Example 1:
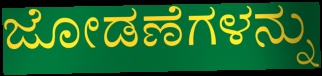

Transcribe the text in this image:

ಜೋಡಣೆಗಳನ್ನು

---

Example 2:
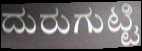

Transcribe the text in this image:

ದುರುಗುಟ್ಟಿ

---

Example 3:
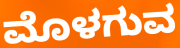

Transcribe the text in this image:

ಮೊಳಗುವ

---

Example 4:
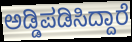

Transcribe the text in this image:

ಅಡ್ಡಿಪಡಿಸಿದ್ದಾರೆ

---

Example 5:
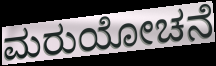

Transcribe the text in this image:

ಮರುಯೋಚನೆ